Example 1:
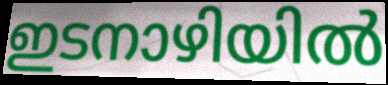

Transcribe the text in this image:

ഇടനാഴിയിൽ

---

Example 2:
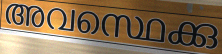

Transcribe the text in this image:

അവസ്ഥെക്കു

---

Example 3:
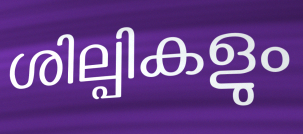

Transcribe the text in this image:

ശില്പികളും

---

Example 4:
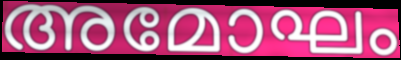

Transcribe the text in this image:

അമോഘം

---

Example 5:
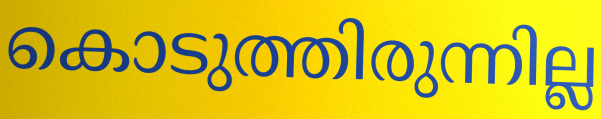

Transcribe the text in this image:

കൊടുത്തിരുന്നില്ല